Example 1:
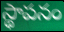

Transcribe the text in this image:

స్థాపనం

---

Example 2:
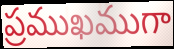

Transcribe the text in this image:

ప్రముఖముగా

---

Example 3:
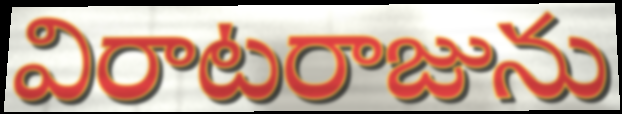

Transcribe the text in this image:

విరాటరాజును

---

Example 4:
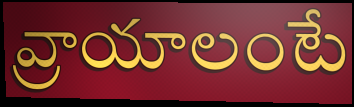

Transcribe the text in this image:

వ్రాయాలంటే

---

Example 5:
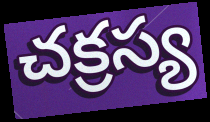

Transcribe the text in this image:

చక్రస్య